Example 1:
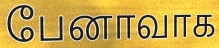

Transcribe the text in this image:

பேனாவாக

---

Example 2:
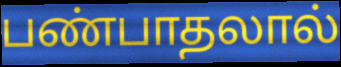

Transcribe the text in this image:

பண்பாதலால்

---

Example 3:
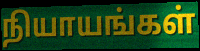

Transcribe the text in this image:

நியாயங்கள்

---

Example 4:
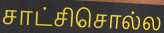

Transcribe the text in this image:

சாட்சிசொல்ல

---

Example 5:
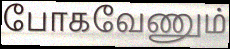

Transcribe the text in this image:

போகவேணும்